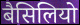
बैसिलियो